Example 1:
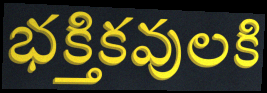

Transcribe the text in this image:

భక్తికవులకి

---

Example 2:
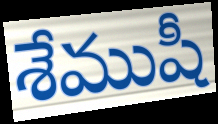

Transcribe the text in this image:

శేముషీ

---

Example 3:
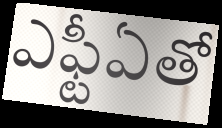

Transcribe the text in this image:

ఎఫ్టీఏతో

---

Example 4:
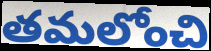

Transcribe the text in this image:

తమలోంచి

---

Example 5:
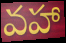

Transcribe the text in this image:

వహా